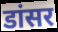
डांसर